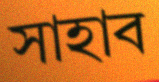
সাহাব